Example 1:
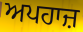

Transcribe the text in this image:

ਅਪਹਾਜ਼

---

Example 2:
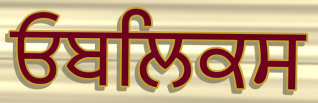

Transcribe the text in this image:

ਓਬਲਿਕਸ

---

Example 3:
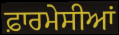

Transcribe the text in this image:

ਫ਼ਾਰਮੇਸੀਆਂ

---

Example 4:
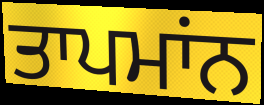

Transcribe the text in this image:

ਤਾਪਮਾਂਨ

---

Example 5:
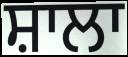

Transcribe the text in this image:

ਸ਼ਾਲਾ